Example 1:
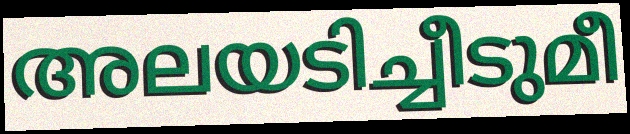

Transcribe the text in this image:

അലയടിച്ചീടുമീ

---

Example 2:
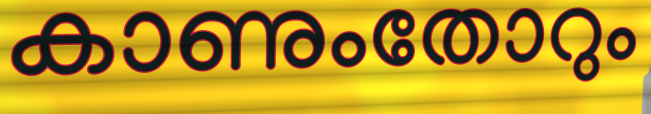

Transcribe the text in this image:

കാണുംതോറും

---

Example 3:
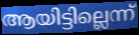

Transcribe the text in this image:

ആയിട്ടില്ലെന്ന്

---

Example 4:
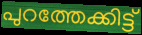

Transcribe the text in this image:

പുറത്തേക്കിട്ട്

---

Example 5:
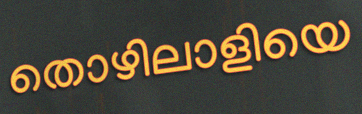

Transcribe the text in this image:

തൊഴിലാളിയെ